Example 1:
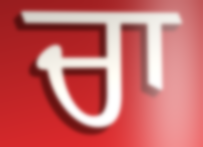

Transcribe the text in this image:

ਚਾ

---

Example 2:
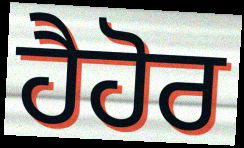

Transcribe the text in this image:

ਹੈਹੋਰ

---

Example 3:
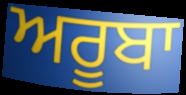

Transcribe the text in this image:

ਅਰੂਬਾ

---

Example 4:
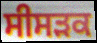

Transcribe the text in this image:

ਸੀਸੜਕ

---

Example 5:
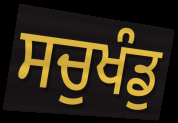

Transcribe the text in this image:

ਸਚੁਖੰਡੁ